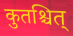
कुतश्चित्